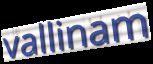
vallinam